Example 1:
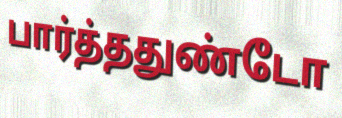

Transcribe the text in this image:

பார்த்ததுண்டோ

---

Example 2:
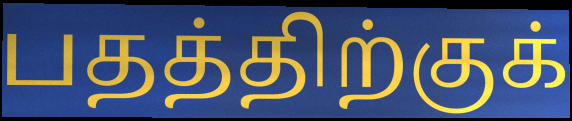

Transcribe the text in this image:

பதத்திற்குக்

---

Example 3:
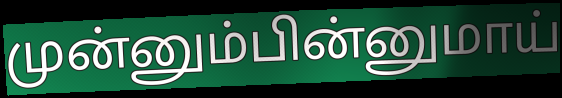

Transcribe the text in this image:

முன்னும்பின்னுமாய்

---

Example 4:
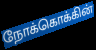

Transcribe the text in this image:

நோக்கொக்கின்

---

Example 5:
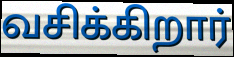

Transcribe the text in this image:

வசிக்கிறார்